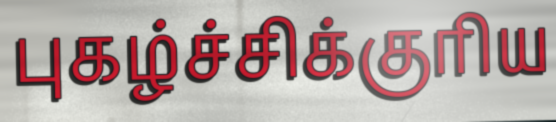
புகழ்ச்சிக்குரிய